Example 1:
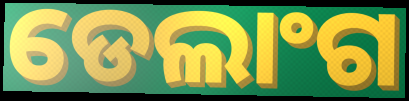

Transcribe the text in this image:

ଡେଲାଂଗ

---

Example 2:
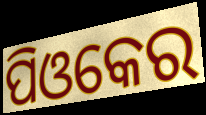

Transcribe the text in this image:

ପିଓକେର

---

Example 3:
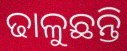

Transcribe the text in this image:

ଢାଳୁଛନ୍ତି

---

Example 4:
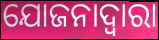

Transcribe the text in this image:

ଯୋଜନାଦ୍ବାରା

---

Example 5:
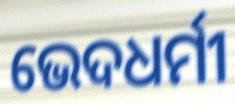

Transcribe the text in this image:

ଭେଦଧର୍ମୀ